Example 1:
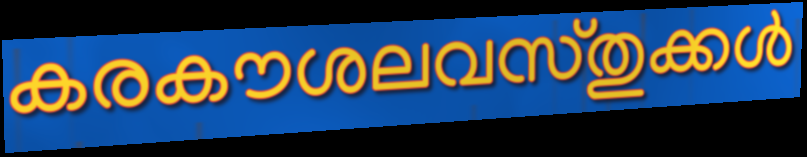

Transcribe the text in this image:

കരകൗശലവസ്തുക്കൾ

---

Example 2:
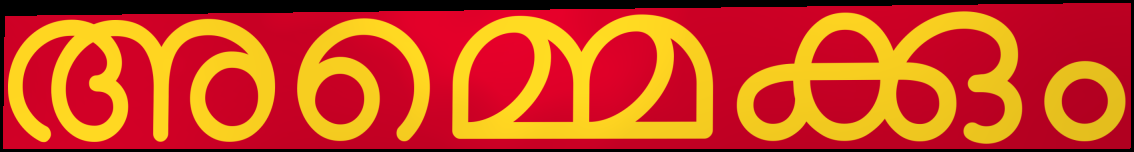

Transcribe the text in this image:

അമ്മെക്കും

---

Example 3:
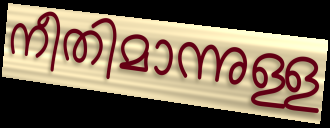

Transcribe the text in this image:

നീതിമാന്നുള്ള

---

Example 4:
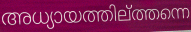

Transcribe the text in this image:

അധ്യായത്തില്ത്തന്നെ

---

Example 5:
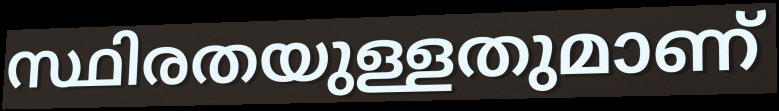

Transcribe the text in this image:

സ്ഥിരതയുള്ളതുമാണ്